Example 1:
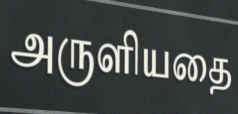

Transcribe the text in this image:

அருளியதை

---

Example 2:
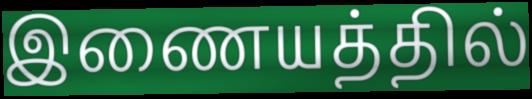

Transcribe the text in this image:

இணையத்தில்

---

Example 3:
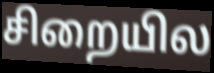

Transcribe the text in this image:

சிறையில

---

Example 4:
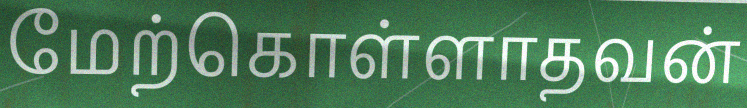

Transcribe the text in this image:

மேற்கொள்ளாதவன்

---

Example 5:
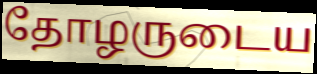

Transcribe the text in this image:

தோழருடைய